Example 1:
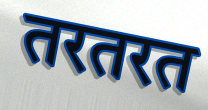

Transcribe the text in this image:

तरतरत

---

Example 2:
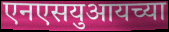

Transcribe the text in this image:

एनएसयुआयच्या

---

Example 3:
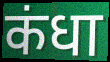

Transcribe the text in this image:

कंधा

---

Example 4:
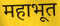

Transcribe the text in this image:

महाभूत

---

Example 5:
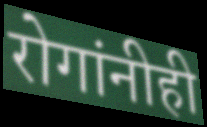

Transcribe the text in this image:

रोगांनीही